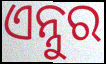
ଏନ୍ନୁର